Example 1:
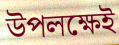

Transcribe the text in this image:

উপলক্ষেই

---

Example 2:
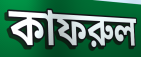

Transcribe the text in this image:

কাফরুল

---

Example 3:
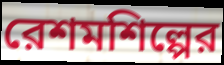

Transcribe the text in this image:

রেশমশিল্পের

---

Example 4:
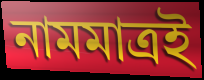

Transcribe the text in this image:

নামমাত্রই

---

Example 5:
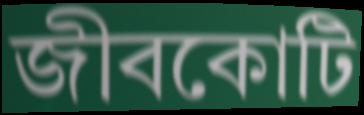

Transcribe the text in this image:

জীবকোটি